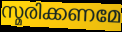
സ്മരിക്കണമേ